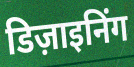
डिज़ाइनिंग